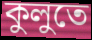
কুলুতে